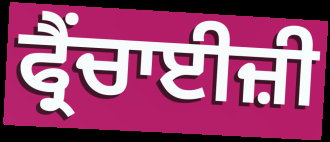
ਫ੍ਰੈਂਚਾਈਜ਼ੀ